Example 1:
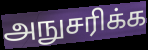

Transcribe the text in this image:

அநுசரிக்க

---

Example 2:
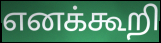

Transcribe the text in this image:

எனக்கூறி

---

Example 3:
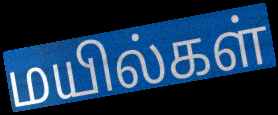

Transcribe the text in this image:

மயில்கள்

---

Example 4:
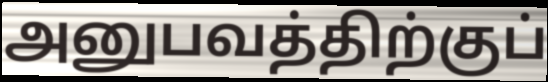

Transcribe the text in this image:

அனுபவத்திற்குப்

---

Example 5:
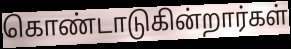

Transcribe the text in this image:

கொண்டாடுகின்றார்கள்